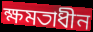
ক্ষমতাধীন